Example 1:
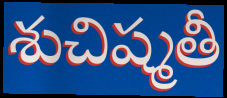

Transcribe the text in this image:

శుచిష్మతీ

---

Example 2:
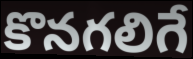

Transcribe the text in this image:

కొనగలిగే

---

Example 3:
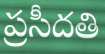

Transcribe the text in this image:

ప్రసీదతి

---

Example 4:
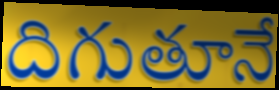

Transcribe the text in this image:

దిగుతూనే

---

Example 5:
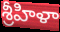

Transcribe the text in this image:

శ్రీహిళా